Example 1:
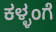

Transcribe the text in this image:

ಕಳ್ಳಂಗೆ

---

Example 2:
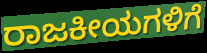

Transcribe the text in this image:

ರಾಜಕೀಯಗಳಿಗೆ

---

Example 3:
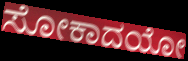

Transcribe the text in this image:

ಸೋಕಾದಯೋ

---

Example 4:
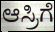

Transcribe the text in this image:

ಆಸ್ರಿಗೆ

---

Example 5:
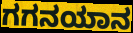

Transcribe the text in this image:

ಗಗನಯಾನ